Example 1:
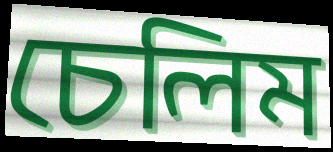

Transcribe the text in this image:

চেলিম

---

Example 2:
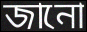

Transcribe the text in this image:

জানো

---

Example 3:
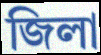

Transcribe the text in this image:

জিলা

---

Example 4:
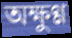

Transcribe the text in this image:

অক্ষুণ্ণ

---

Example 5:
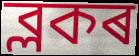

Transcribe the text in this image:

ব্লকৰ